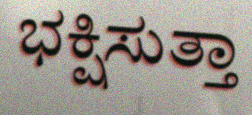
ಭಕ್ಷಿಸುತ್ತಾ